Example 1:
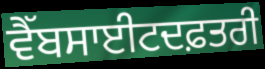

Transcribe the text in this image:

ਵੈੱਬਸਾਈਟਦਫ਼ਤਰੀ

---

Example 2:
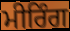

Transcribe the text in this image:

ਮੀਰਿੰਗ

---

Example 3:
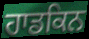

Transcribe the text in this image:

ਹਾਡਕਿਨ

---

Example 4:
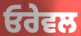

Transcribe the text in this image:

ਓਰੇਵਲ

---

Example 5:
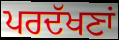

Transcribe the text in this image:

ਪਰਦੱਖਣਾਂ